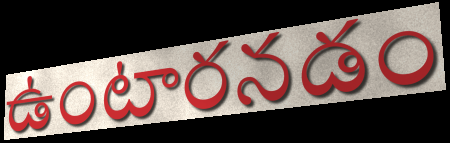
ఉంటారనడం